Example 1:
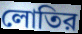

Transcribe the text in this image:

লোতির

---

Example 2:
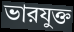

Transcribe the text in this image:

ভারযুক্ত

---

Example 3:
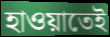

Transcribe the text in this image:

হাওয়াতেই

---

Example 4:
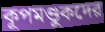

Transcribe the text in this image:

কূপমণ্ডুকদের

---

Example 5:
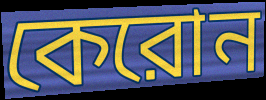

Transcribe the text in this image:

কেরোন